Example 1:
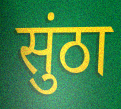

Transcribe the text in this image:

सुंठा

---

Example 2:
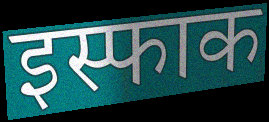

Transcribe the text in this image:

इस्फाक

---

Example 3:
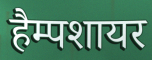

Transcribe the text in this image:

हैम्पशायर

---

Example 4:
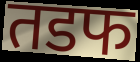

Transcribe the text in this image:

तडफ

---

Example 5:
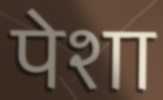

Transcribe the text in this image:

पेशा